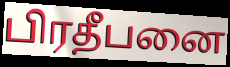
பிரதீபனை